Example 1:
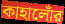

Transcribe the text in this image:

কাহালোঁর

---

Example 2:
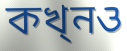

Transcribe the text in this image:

কখ্নও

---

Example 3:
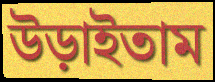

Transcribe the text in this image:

উড়াইতাম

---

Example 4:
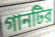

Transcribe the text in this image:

গানটির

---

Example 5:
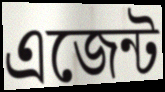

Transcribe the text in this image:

এজেন্ট